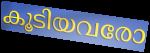
കൂടിയവരോ